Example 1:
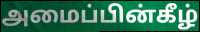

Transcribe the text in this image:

அமைப்பின்கீழ்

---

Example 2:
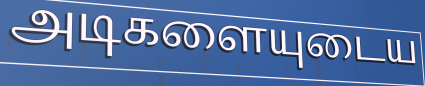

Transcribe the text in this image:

அடிகளையுடைய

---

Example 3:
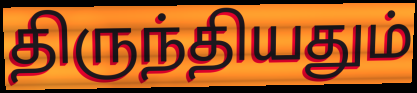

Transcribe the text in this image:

திருந்தியதும்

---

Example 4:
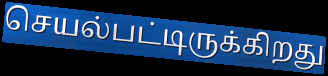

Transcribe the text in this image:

செயல்பட்டிருக்கிறது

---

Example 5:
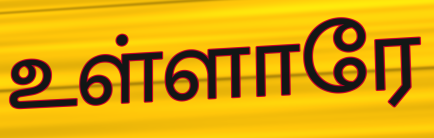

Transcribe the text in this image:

உள்ளாரே